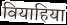
वियाहिया